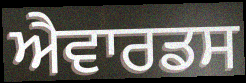
ਐਵਾਰਡਸ